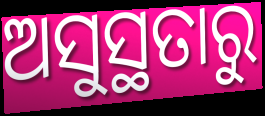
ଅସୁସ୍ଥତାରୁ